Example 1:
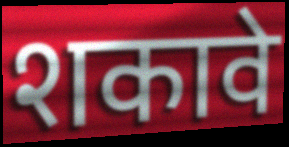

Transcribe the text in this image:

शकावे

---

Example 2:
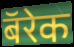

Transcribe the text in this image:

बॅरेक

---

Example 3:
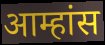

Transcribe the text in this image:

आम्हांस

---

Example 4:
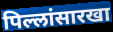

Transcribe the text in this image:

पिल्लांसारखा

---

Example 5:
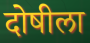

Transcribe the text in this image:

दोषीला